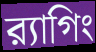
র‍্যাগিং